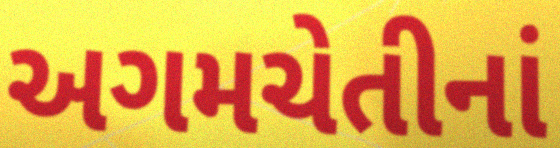
અગમચેતીનાં